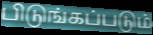
பிடுங்கப்படும்